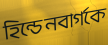
হিন্ডেনবার্গকে